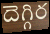
దెగ్గిర